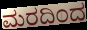
ಮರದಿಂದ